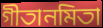
গীতানমিতা